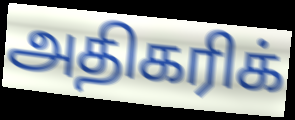
அதிகரிக்